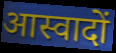
आस्वादों